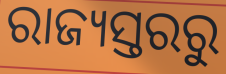
ରାଜ୍ୟସ୍ତରରୁ